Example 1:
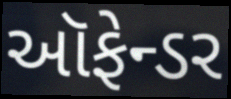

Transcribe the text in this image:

ઑફેન્ડર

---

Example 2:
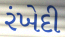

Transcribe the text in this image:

રંખેદી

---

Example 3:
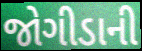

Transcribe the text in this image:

જોગીડાની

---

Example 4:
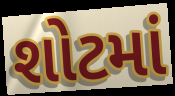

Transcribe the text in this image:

શોટમાં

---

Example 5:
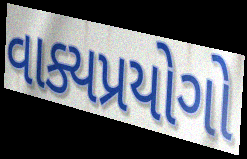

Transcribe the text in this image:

વાક્યપ્રયોગો